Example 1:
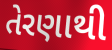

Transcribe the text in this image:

તેરણાથી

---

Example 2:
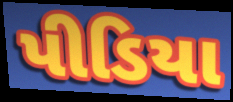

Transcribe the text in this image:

પીડિયા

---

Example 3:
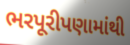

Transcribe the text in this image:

ભરપૂરીપણામાંથી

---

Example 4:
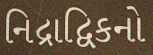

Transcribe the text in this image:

નિદ્રાદ્વિકનો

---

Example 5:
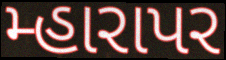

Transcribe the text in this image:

મ્હારાપર